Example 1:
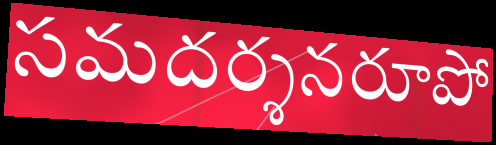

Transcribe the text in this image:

సమదర్శనరూపో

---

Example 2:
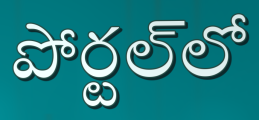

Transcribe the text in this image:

పోర్టల్‌లో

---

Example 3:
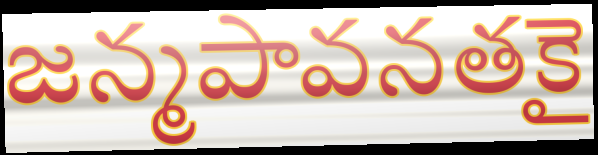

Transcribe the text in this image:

జన్మపావనతకై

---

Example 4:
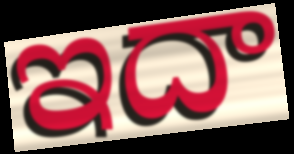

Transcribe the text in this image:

ఇదా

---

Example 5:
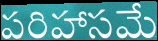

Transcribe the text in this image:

పరిహాసమే